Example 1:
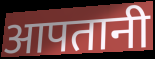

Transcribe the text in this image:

आपतानी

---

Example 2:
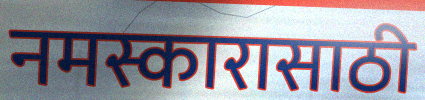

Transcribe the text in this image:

नमस्कारासाठी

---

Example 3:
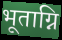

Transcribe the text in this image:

भूताग्नि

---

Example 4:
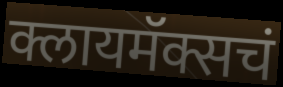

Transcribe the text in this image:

क्लायमॅक्सचं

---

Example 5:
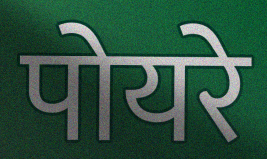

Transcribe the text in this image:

पोयरे